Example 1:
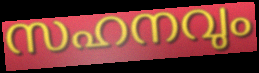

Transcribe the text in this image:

സഹനവും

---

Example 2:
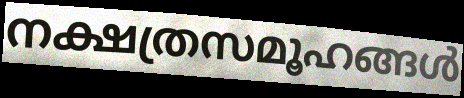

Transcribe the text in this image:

നക്ഷത്രസമൂഹങ്ങൾ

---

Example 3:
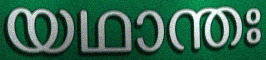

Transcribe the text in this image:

യഥാന്തഃ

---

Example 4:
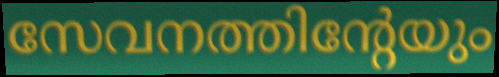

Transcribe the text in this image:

സേവനത്തിന്റേയും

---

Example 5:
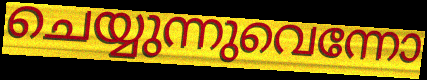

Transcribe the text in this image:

ചെയ്യുന്നുവെന്നോ